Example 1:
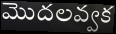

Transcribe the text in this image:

మొదలవ్వక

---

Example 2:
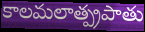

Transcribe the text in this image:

కాలమలాత్ప్రపాతు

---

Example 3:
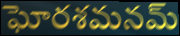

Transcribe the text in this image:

ఘోరశమనమ్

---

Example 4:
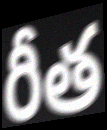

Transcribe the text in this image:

రీత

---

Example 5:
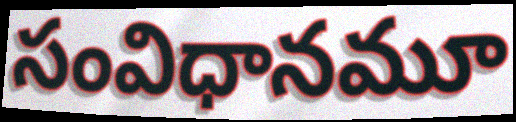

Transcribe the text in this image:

సంవిధానమూ